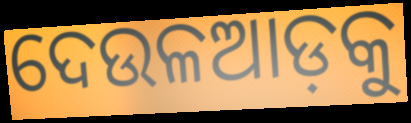
ଦେଉଳଆଡ଼କୁ